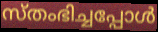
സ്തംഭിച്ചപ്പോൾ